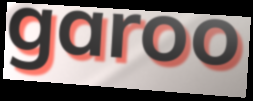
garoo